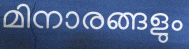
മിനാരങ്ങളും